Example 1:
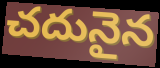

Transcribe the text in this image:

చదునైన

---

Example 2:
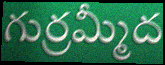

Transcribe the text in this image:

గుర్రమ్మీద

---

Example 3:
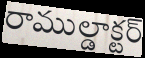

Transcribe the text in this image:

రాముల్డాక్టర్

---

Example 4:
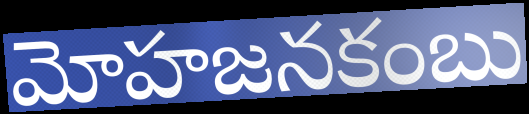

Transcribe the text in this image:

మోహజనకంబు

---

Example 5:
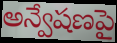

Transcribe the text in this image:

అన్వేషణపై